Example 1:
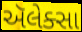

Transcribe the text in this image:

ઍલેક્સા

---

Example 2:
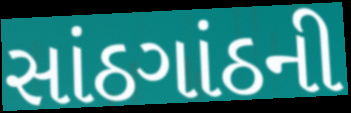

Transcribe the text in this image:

સાંઠગાંઠની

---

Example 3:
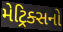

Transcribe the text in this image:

મેટ્રિક્સનો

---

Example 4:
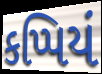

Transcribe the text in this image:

કપ્પિયં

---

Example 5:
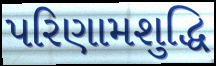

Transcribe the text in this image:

પરિણામશુદ્ધિ